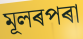
মূলৰপৰা